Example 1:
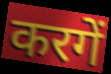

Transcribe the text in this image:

करगें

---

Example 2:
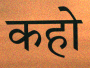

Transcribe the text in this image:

कहो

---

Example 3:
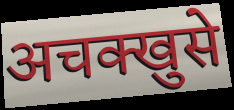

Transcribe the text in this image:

अचक्खुसे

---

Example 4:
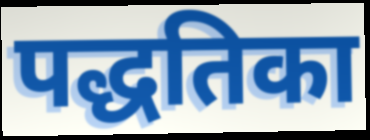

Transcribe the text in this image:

पद्धतिका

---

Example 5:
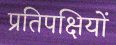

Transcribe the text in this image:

प्रतिपक्षियों